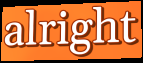
alright